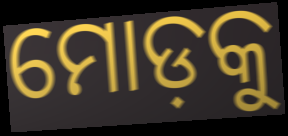
ମୋଡ଼କୁ